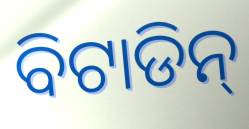
ବିଟାଡିନ୍